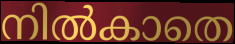
നിൽകാതെ